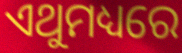
ଏଥୁମଧ୍ୟରେ